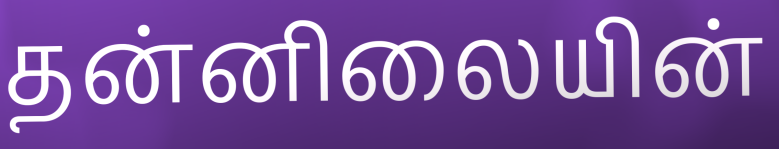
தன்னிலையின்